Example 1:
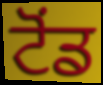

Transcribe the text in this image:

ਟੋਂਡ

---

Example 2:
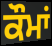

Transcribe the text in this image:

ਕੌਮਾਂ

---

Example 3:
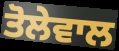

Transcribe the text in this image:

ਤੋਲੇਵਾਲ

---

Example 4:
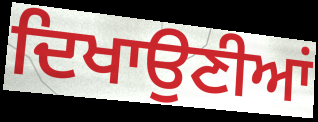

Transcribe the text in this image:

ਦਿਖਾਉਣੀਆਂ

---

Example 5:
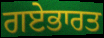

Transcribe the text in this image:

ਗਏਭਾਰਤ